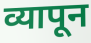
व्यापून